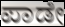
ಪಾಡೇ